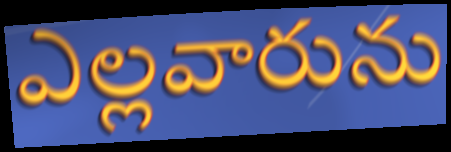
ఎల్లవారును